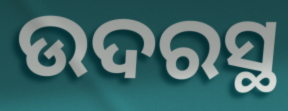
ଉଦରସ୍ଥ